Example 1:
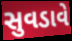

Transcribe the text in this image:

સુવડાવે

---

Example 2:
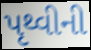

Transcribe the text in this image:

પૃથ્વીની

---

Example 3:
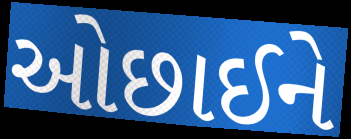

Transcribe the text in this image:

ઓછાઈને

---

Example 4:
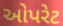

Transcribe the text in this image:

ઓપરેટ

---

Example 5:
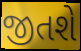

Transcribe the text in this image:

જીતશે